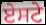
ਏਸਟੇ